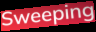
Sweeping